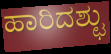
ಹಾರಿದಶ್ಟು